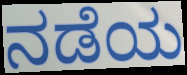
ನಡೆಯ